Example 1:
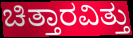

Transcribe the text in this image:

ಚಿತ್ತಾರವಿತ್ತು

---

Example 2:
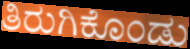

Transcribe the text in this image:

ತಿರುಗಿಕೊಂಡು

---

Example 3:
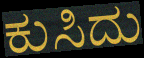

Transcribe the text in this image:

ಕುಸಿದು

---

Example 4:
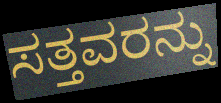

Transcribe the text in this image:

ಸತ್ತವರನ್ನು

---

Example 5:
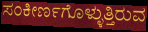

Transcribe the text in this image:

ಸಂಕೀರ್ಣಗೊಳ್ಳುತ್ತಿರುವ